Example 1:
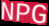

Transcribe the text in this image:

NPG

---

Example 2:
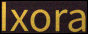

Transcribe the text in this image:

Ixora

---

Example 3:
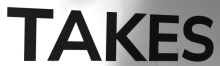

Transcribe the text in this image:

TAKES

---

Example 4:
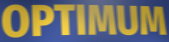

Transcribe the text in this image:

OPTIMUM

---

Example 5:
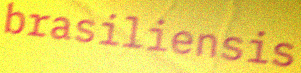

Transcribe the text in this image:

brasiliensis